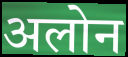
अलोन